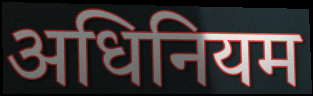
अधिनियम